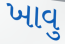
ખાવુ